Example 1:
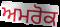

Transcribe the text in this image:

ਅਮਰੋਕ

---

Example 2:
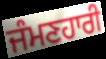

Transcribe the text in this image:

ਜੰਮਣਹਾਰੀ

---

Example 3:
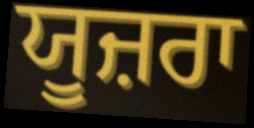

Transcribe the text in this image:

ਯੂਜ਼ਰਾ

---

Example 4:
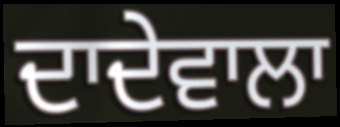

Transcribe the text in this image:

ਦਾਦੇਵਾਲਾ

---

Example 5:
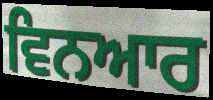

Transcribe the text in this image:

ਵਿਨਆਰ